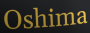
Oshima